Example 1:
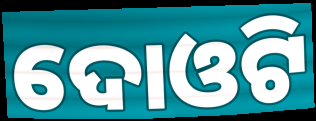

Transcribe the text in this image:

ଦୋଓଟି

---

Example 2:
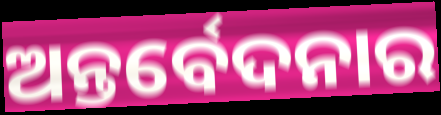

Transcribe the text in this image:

ଅନ୍ତର୍ବେଦନାର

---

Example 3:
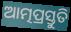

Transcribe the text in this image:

ଆତ୍ମପ୍ରସ୍ତୁତି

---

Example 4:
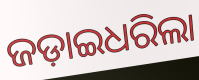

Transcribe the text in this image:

ଜଡ଼ାଇଧରିଲା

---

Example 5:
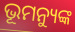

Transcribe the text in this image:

ଭୂମନ୍ୟୁଙ୍କ